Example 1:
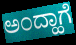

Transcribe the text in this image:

ಅಂದ್ಹಾಗೆ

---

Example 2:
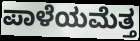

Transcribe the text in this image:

ಪಾಳೆಯಮೆತ್ತ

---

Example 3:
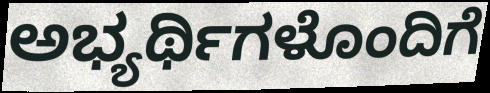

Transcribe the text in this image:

ಅಭ್ಯರ್ಥಿಗಳೊಂದಿಗೆ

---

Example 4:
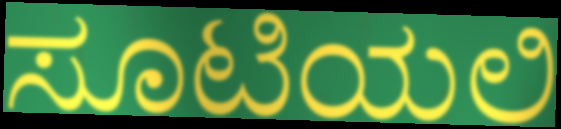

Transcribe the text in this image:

ಸೂಟಿಯಲಿ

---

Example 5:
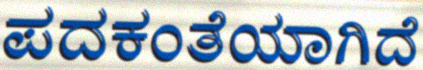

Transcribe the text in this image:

ಪದಕಂತೆಯಾಗಿದೆ